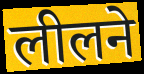
लीलने